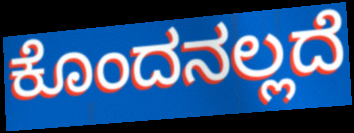
ಕೊಂದನಲ್ಲದೆ